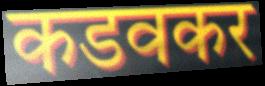
कडवकर